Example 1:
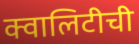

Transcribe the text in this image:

क्वालिटीची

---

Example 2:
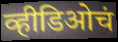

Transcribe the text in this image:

व्हीडिओचं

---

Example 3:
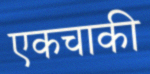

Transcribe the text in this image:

एकचाकी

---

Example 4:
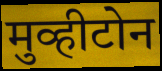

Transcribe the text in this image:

मुव्हीटोन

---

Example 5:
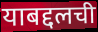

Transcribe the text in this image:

याबद्दलची